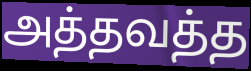
அத்தவத்த